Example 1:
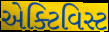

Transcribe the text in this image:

એક્ટિવિસ્ટ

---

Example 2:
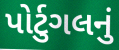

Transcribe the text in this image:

પોર્ટુગલનું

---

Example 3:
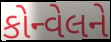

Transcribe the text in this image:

કોન્વેલને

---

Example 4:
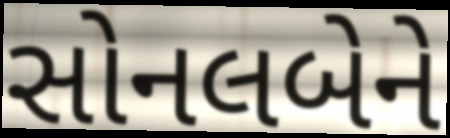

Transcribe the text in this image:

સોનલબેને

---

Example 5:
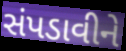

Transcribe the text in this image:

સંપડાવીને